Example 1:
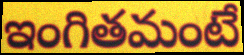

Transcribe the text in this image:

ఇంగితమంటే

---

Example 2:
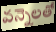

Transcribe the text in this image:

వన్నెలతో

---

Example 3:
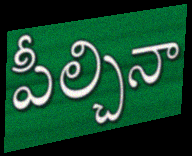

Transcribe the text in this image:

పీల్చినా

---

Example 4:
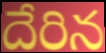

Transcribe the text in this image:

దేరిన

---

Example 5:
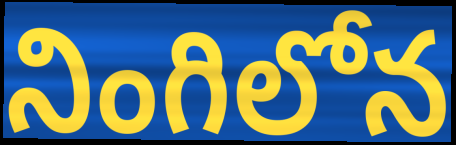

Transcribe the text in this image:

నింగిలోన